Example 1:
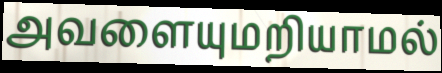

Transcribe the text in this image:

அவளையுமறியாமல்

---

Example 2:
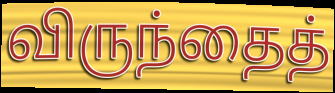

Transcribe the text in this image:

விருந்தைத்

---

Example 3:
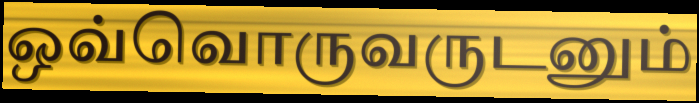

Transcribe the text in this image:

ஒவ்வொருவருடனும்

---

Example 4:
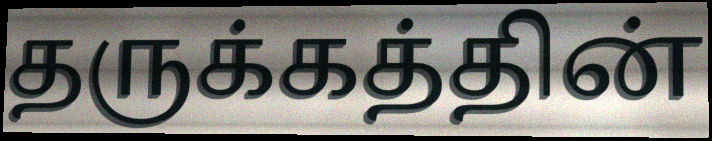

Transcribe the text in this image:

தருக்கத்தின்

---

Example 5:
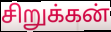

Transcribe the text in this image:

சிறுக்கன்